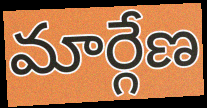
మార్గేణ